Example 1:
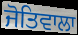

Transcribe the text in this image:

ਜੋਤਿਵਾਲਾ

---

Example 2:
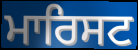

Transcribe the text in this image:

ਮਾਰਿਸਟ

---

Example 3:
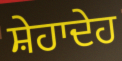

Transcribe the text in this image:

ਸ਼ੇਹਾਦੇਹ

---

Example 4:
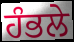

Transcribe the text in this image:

ਹੰਭਲੇ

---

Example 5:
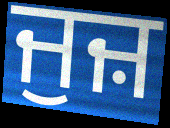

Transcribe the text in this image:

ਜੁਜ਼